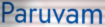
Paruvam